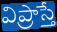
విప్రాస్తే